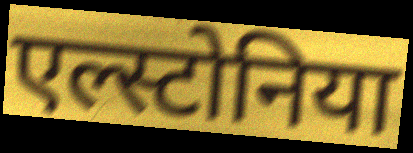
एल्स्टोनिया